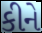
કીને